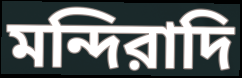
মন্দিরাদি